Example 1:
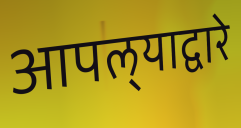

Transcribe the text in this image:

आपल्याद्वारे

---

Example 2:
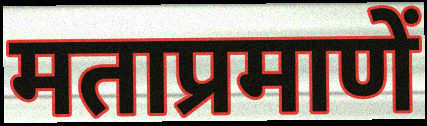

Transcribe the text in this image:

मताप्रमाणें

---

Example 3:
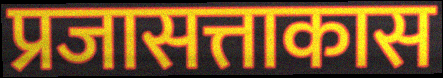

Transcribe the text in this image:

प्रजासत्ताकास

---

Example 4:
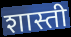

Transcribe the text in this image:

शास्ती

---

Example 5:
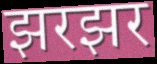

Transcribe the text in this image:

झरझर